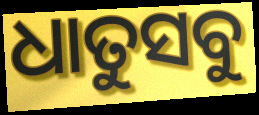
ଧାତୁସବୁ